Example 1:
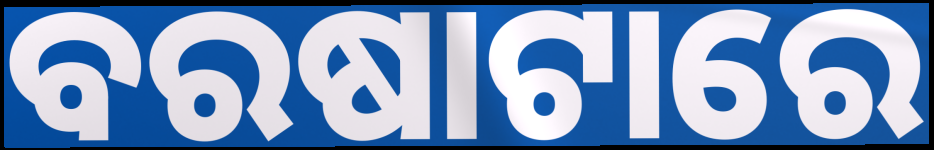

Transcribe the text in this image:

ବରଷାଟାରେ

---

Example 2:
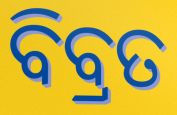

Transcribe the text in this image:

ବିବ୍ରତ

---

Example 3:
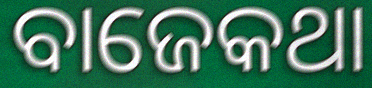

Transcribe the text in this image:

ବାଜେକଥା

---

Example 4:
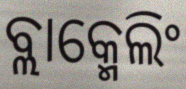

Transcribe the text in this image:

ବ୍ଲାକ୍ମେଲିଂ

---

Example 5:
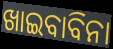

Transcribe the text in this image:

ଖାଇବାବିନା